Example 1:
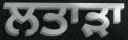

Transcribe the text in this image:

ਲਤਾੜਾ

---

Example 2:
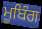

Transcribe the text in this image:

ਮੂਬਿੰਗ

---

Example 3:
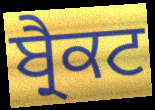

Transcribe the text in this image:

ਬ੍ਰੈਕਟ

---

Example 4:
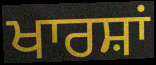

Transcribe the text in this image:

ਖਾਰਸ਼ਾਂ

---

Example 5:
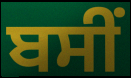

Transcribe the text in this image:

ਬਸੀਂ